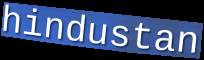
hindustan